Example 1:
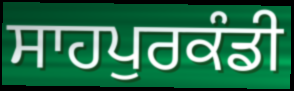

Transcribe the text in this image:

ਸਾਹਪੁਰਕੰਡੀ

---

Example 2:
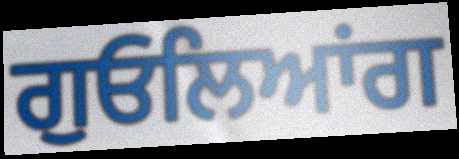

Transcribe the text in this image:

ਗੁਓਲਿਆਂਗ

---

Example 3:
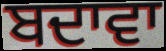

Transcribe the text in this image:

ਬਦਾਵਾ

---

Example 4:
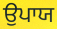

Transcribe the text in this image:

ਉਪਾਯ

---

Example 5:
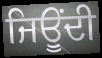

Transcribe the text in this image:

ਜਿਊਂਦੀ